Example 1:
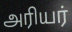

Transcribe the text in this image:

அரியர்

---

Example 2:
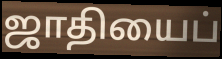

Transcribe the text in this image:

ஜாதியைப்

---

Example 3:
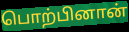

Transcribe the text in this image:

பொற்பினான்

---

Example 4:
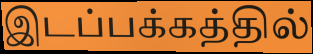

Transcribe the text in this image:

இடப்பக்கத்தில்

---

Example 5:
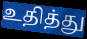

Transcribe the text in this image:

உதித்து